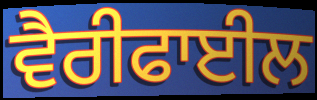
ਵੈਰੀਫਾਈਲ